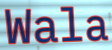
Wala